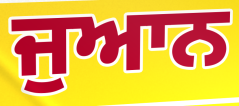
ਜੁਆਨ